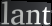
lant